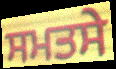
ਸਮਤਸੇ